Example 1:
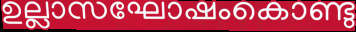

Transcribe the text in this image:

ഉല്ലാസഘോഷംകൊണ്ടു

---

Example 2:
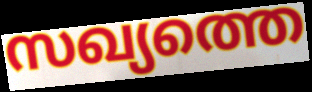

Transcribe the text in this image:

സഖ്യത്തെ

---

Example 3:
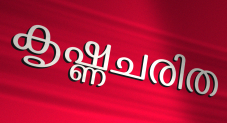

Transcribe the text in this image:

കൃഷ്ണചരിത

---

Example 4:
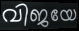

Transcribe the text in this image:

വിജയേ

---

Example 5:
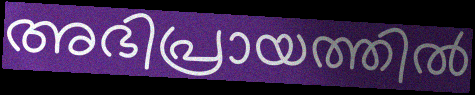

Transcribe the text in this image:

അഭിപ്രായത്തിൽ